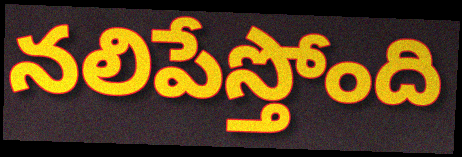
నలిపేస్తోంది